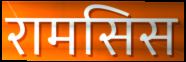
रामसिस